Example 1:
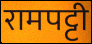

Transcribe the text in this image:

रामपट्टी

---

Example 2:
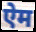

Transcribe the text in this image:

ऐम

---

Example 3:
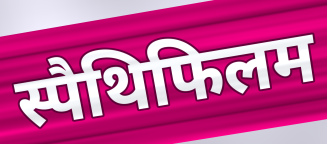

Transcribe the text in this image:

स्पैथिफिलम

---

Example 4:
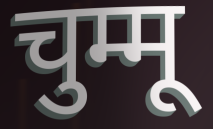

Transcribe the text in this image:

चुम्मू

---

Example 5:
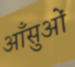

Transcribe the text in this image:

आँसुओं